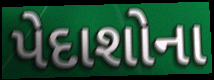
પેદાશોના